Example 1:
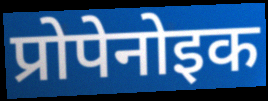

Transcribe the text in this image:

प्रोपेनोइक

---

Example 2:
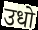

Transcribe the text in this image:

उधो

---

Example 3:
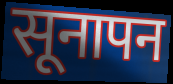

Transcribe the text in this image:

सूनापन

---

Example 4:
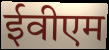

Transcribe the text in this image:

ईवीएम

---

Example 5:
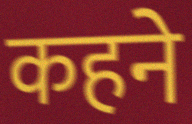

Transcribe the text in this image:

कहने